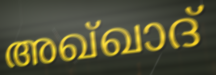
അഖ്ഖാദ്